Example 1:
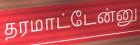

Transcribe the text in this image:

தரமாட்டேன்னு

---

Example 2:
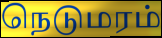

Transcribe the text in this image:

நெடுமரம்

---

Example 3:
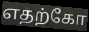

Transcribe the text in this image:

எதற்கோ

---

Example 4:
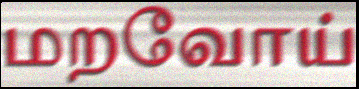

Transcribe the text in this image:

மறவோய்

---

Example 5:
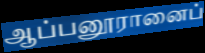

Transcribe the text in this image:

ஆப்பனூரானைப்